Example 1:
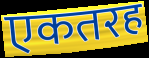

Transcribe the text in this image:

एकतरह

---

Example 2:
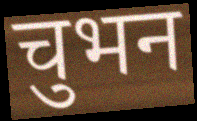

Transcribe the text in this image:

चुभन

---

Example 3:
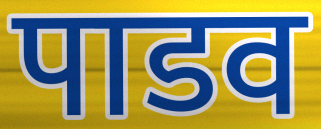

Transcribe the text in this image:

पाडव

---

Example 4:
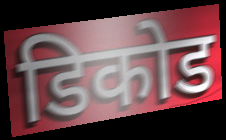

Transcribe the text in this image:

डिकोड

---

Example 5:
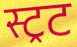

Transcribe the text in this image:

स्ट्रट